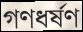
গণধর্ষণ